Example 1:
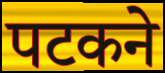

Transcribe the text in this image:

पटकने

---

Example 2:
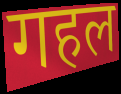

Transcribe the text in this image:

गहल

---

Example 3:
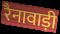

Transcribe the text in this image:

रैनावाड़ी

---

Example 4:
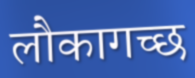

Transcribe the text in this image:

लौकागच्छ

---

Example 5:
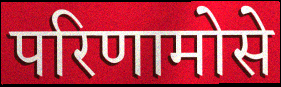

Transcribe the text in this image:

परिणामोसे